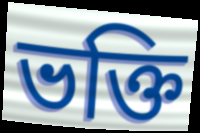
ভক্তি